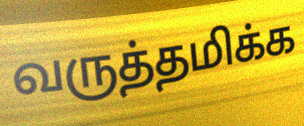
வருத்தமிக்க